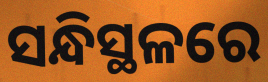
ସନ୍ଧିସ୍ଥଳରେ